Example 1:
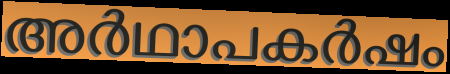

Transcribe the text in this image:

അർഥാപകർഷം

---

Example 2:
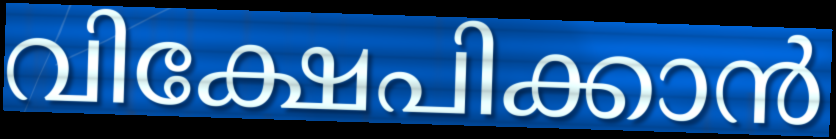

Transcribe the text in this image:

വിക്ഷേപിക്കാൻ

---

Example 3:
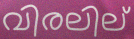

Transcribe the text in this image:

വിരലില്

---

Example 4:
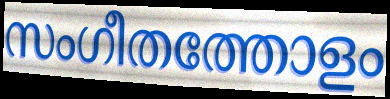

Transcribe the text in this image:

സംഗീതത്തോളം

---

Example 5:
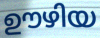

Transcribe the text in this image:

ഊഴിയ